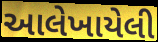
આલેખાયેલી